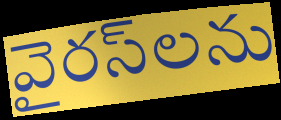
వైరస్‌లను